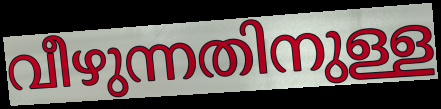
വീഴുന്നതിനുള്ള